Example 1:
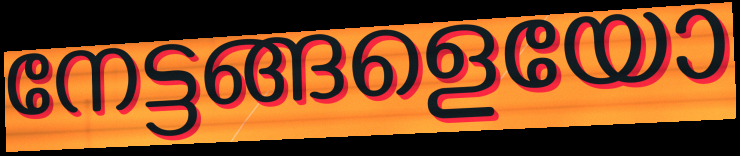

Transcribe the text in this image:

നേട്ടങ്ങളെയോ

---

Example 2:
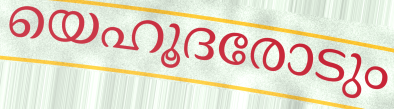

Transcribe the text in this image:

യെഹൂദരോടും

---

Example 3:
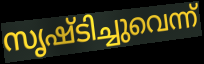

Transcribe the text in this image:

സൃഷ്ടിച്ചുവെന്ന്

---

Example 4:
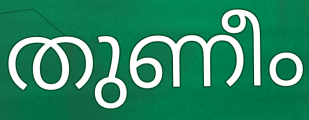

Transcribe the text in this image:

തുണീം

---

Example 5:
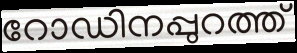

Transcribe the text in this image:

റോഡിനപ്പുറത്ത്